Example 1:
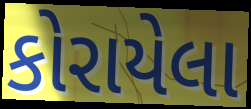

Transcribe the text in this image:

કોરાયેલા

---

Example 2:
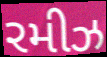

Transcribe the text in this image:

રમીઝ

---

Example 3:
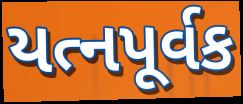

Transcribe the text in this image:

યત્નપૂર્વક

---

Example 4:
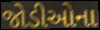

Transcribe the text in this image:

જોડીઓના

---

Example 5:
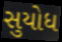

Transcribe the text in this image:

સુયોધ